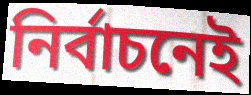
নির্বাচনেই